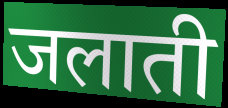
जलाती